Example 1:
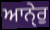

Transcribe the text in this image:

ਆਨੇੑਰੁ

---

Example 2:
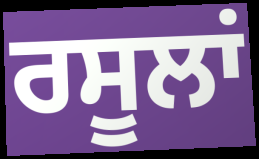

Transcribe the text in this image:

ਰਸੂਲਾਂ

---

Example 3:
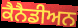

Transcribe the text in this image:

ਕੈਨੈਡੀਅਨ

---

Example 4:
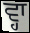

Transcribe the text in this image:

ਵ੍ਹਾ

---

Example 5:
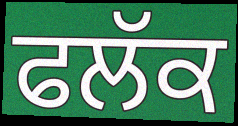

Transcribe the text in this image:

ਫਲੱਕ